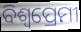
ବିଶ୍ବପ୍ରେମୀ